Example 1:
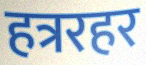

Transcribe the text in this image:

हत्ररहर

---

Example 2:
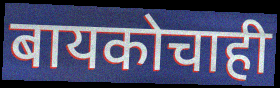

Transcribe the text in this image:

बायकोचाही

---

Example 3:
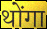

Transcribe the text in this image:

थोंगा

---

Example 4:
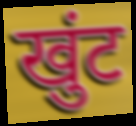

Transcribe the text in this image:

खुंट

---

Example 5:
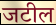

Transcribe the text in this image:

जटील